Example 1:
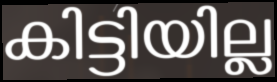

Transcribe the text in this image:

കിട്ടിയില്ല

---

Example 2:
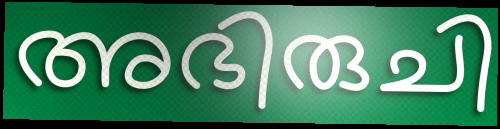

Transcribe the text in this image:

അഭിരുചി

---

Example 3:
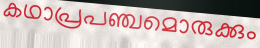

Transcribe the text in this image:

കഥാപ്രപഞ്ചമൊരുക്കും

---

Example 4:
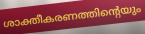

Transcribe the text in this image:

ശാക്തീകരണത്തിന്റെയും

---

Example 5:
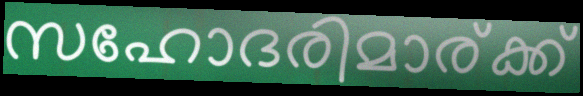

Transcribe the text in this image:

സഹോദരിമാര്ക്ക്